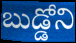
బుడ్డోని